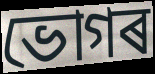
ভোগৰ